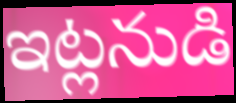
ఇట్లనుడి